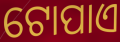
ଟୋପାଏ